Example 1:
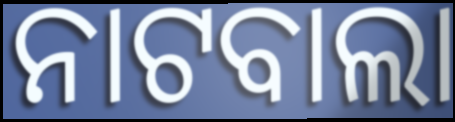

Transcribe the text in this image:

ନାଟବାଲା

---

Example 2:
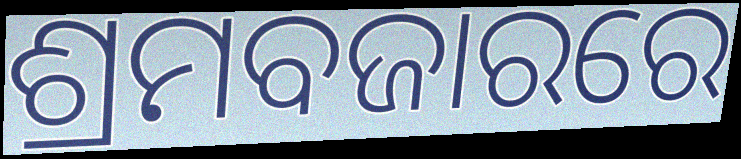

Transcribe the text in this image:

ଶ୍ରମବଜାରରେ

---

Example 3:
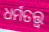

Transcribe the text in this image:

ଧର୍ମତତ୍ତ୍ଵ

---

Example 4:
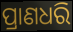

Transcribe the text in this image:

ପ୍ରାଣଧରି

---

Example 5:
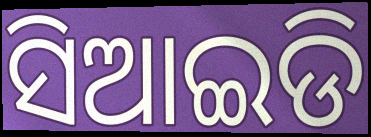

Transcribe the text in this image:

ସିଆଇଡି